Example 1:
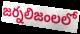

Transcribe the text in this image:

జర్నలిజంలలో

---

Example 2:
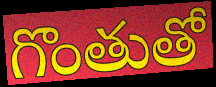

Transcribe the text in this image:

గొంతుతో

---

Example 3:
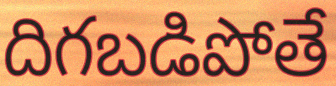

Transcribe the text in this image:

దిగబడిపోతే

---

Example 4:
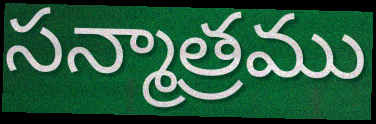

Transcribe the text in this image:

సన్మాత్రము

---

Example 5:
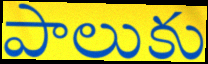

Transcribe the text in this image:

పాలుకు